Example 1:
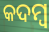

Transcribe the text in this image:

କଦମ୍ୱ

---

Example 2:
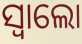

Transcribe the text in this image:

ସ୍ବାଲୋ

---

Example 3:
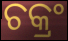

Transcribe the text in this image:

ଚକ୍ରଂ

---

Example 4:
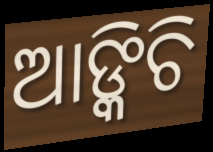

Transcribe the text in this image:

ଆଙ୍କିଚି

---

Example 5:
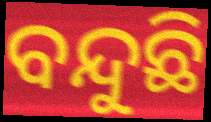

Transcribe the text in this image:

ବନ୍ଦୁଛି